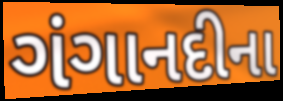
ગંગાનદીના